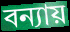
বন্যায়